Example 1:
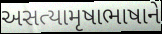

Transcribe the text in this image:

અસત્યામૃષાભાષાને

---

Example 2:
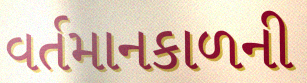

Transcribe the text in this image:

વર્તમાનકાળની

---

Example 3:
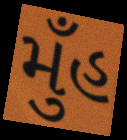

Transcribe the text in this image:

મુઁહ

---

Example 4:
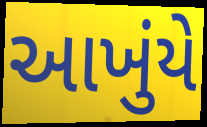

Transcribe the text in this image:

આખુંયે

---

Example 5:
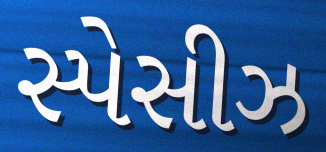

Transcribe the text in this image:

સ્પેસીઝ